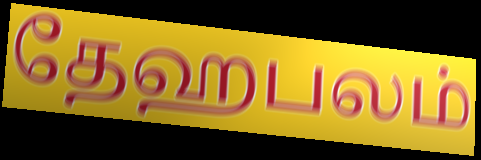
தேஹபலம்